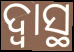
ଦ୍ୱାସ୍ଥ